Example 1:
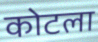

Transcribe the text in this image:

कोटला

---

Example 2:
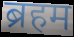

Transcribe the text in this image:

ब्रहम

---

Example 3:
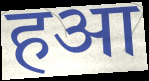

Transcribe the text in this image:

हआ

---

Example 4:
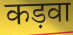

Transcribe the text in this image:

कड़वा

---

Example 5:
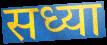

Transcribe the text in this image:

सध्या